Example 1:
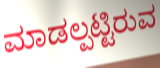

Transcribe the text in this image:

ಮಾಡಲ್ಪಟ್ಟಿರುವ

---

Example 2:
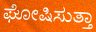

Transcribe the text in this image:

ಘೋಷಿಸುತ್ತಾ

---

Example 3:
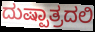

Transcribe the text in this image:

ದುಷ್ಪಾತ್ರದಲಿ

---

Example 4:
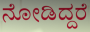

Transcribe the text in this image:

ನೋಡಿದ್ದರೆ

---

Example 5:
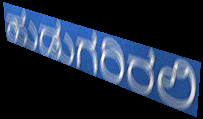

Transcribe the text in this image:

ಹುಡುಗರಿರಲಿ